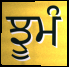
ਝੂਮੰ